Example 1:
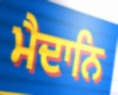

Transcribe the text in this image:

ਮੈਦਾਨਿ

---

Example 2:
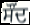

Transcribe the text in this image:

ਸੌਂਦ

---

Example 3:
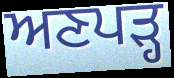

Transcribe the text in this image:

ਅਣਪੜ੍ਹ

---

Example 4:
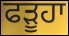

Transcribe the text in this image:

ਫੜੂਹਾ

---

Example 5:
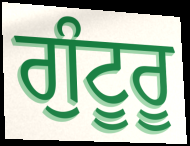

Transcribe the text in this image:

ਗੁੰਟੂਰੂ